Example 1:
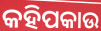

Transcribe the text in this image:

କହିପକାଉ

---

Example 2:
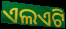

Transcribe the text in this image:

ଏଲଏଟି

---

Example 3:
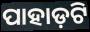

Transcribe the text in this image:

ପାହାଡ଼ଟି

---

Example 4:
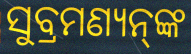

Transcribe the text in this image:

ସୁବ୍ରମଣ୍ୟନ୍‌ଙ୍କ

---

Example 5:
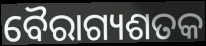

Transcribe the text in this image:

ବୈରାଗ୍ୟଶତକ